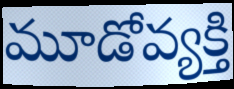
మూడోవ్యక్తి